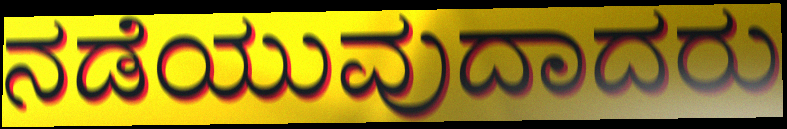
ನಡೆಯುವುದಾದರು